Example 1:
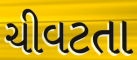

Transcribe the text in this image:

ચીવટતા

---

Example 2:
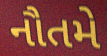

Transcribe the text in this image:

નૌતમે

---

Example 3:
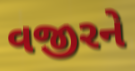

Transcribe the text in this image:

વજીરને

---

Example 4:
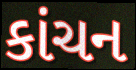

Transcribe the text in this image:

કાંચન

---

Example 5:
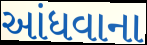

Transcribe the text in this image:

આંધવાના